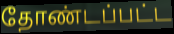
தோண்டப்பட்ட